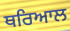
ਥਰਿਆਲ